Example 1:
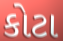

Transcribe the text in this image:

કોટા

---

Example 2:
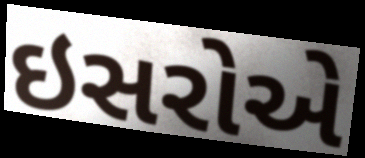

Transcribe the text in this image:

ઇસરોએ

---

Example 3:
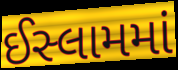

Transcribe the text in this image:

ઈસ્લામમાં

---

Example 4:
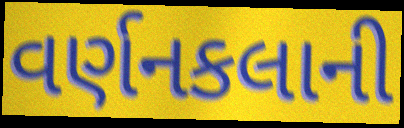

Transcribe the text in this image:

વર્ણનકલાની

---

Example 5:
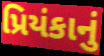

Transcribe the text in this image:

પ્રિયંકાનું